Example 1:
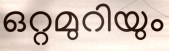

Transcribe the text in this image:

ഒറ്റമുറിയും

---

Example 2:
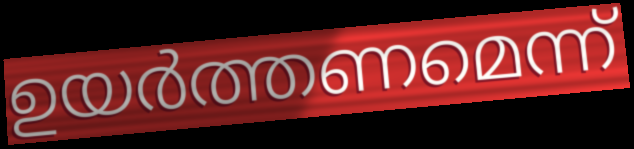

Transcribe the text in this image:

ഉയർത്തണമെന്ന്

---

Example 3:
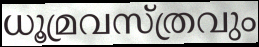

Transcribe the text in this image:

ധൂമ്രവസ്ത്രവും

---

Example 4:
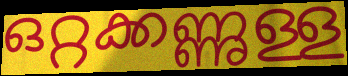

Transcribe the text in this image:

ഒറ്റക്കണ്ണുള്ള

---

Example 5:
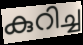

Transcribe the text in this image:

കുറിച്ച